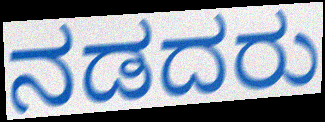
ನಡದರು